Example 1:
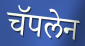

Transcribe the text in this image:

चॅपलेन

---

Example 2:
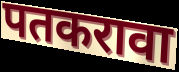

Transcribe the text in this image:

पतकरावा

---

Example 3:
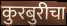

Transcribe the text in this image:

कुरबुरीचा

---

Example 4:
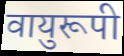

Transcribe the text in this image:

वायुरूपी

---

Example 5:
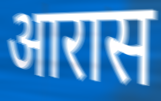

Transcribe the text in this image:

आरास